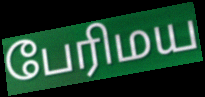
பேரிமய